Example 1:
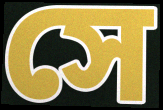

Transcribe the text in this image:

সে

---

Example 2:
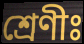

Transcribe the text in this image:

শ্ৰেণীঃ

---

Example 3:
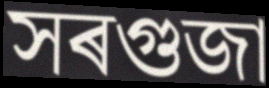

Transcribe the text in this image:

সৰগুজা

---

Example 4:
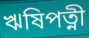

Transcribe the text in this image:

ঋষিপত্নী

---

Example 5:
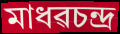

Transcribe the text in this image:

মাধৱচন্দ্ৰ